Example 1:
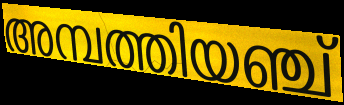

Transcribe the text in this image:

അമ്പത്തിയഞ്ച്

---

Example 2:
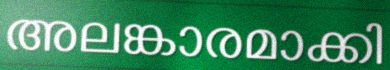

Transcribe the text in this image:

അലങ്കാരമാക്കി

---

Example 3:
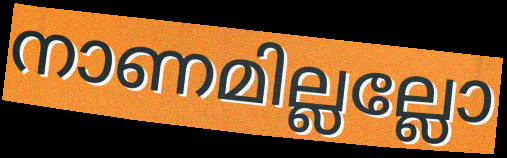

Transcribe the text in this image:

നാണമില്ലല്ലോ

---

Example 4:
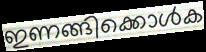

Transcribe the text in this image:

ഇണങ്ങിക്കൊൾക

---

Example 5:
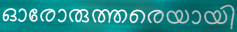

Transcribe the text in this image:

ഓരോരുത്തരെയായി